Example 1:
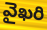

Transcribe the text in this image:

వైఖరి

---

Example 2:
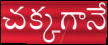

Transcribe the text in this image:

చక్కగానే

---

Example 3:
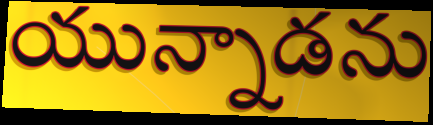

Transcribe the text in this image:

యున్నాడను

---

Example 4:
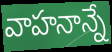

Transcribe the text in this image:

వాహనాన్నే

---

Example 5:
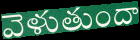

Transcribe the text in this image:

వెళుతుందా